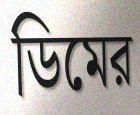
ডিমের